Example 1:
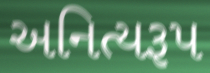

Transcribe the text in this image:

અનિત્યરૂપ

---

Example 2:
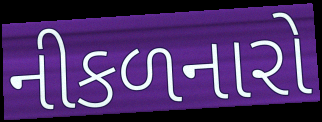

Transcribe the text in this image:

નીકળનારો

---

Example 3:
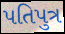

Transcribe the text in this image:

પતિપુત્ર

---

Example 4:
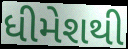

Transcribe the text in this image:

ધીમેશથી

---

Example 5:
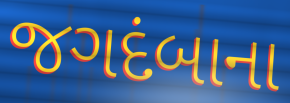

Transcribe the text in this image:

જગદંબાના